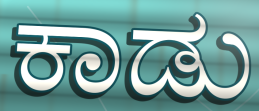
ಕಾಡು